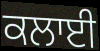
ਕਲਾਈ